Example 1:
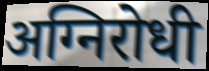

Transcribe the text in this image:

अग्निरोधी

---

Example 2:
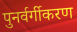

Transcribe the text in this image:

पुनर्वर्गीकरण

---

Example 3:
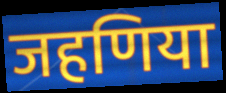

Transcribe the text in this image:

जहणिया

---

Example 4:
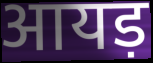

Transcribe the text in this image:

आयड़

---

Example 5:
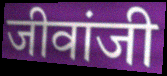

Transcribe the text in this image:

जीवांजी